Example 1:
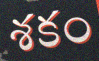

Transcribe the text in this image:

శకం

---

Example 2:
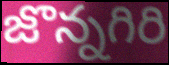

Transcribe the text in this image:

జొన్నగిరి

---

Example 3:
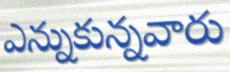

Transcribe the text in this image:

ఎన్నుకున్నవారు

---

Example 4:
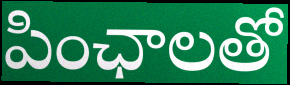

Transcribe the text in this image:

పింఛాలతో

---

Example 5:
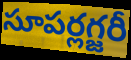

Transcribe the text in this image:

సూపర్లగ్జరీ